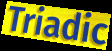
Triadic